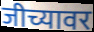
जीच्यावर